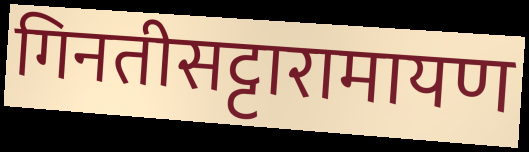
गिनतीसट्टारामायण